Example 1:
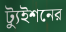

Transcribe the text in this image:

ট্যুইশনের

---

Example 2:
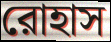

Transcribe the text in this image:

রোহাস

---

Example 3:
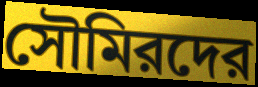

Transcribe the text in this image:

সৌমিরদের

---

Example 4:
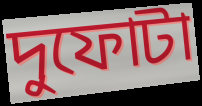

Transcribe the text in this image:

দুফোটা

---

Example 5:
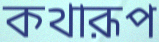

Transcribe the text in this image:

কথারূপ